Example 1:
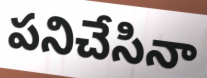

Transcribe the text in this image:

పనిచేసినా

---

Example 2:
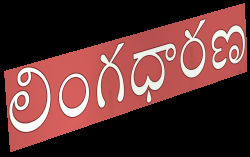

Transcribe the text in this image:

లింగధారణ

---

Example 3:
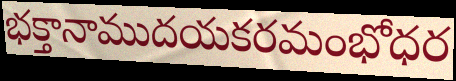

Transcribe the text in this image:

భక్తానాముదయకరమంభోధర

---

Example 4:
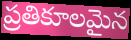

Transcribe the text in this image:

ప్రతికూలమైన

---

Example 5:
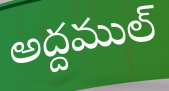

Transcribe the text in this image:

అద్దముల్